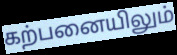
கற்பனையிலும்